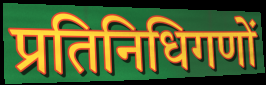
प्रतिनिधिगणों